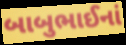
બાબુભાઈનાં